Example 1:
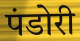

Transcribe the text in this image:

पंडोरी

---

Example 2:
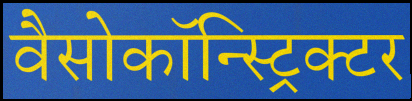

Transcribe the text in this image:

वैसोकॉन्स्ट्रिक्टर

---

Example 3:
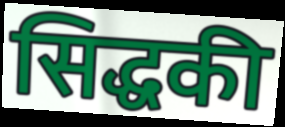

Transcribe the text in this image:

सिद्धकी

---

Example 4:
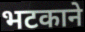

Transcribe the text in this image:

भटकाने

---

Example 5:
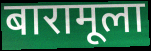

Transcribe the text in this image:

बारामूला